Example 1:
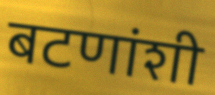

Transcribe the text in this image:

बटणांशी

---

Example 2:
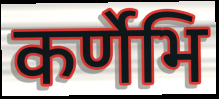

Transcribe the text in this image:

कर्णेभि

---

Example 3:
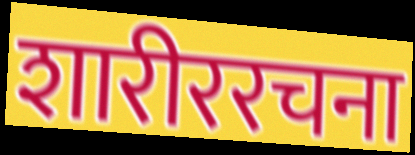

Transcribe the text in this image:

शारीररचना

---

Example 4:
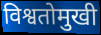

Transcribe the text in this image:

विश्वतोमुखी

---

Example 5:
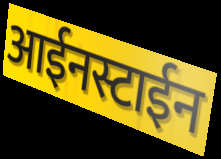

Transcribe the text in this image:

आईनस्टाईन